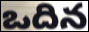
ఒదిన